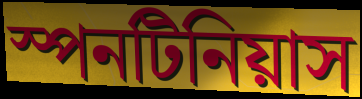
স্পনটিনিয়াস